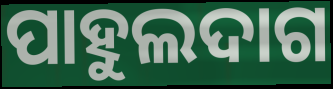
ପାହୁଲଦାଗ